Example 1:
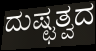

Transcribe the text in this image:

ದುಷ್ಟತ್ವದ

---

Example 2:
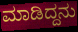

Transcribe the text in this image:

ಮಾಡಿದ್ದನು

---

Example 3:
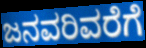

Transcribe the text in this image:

ಜನವರಿವರೆಗೆ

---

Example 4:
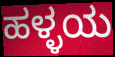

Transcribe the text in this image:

ಹಳ್ಳಯ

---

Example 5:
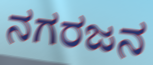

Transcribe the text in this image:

ನಗರಜನ